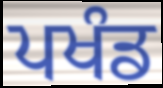
ਪਖੰਡ